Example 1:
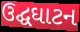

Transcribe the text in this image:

ઉદ્ઘઘાટન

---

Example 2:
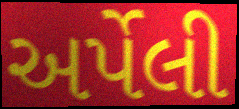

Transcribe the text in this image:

અર્પેલી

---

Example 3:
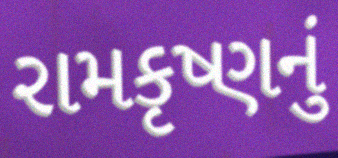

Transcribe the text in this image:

રામકૃષ્ણનું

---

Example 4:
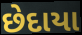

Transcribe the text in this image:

છેદાયા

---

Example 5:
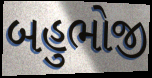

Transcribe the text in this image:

બહુભોજી